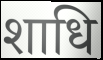
शाधि